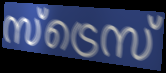
സ്ട്രെസ്